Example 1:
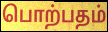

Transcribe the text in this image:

பொற்பதம்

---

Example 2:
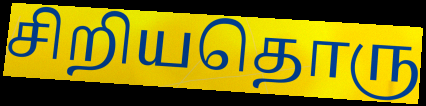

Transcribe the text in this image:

சிறியதொரு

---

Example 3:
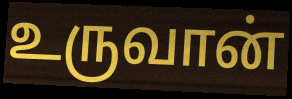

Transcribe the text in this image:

உருவான்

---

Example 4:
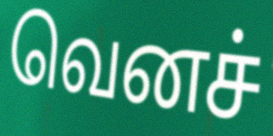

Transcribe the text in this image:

வெனச்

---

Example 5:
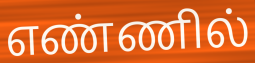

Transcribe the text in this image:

எண்ணில்